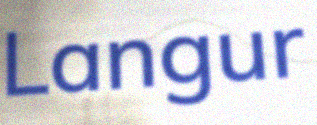
Langur